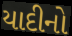
યાદીનો